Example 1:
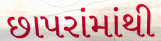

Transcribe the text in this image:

છાપરાંમાંથી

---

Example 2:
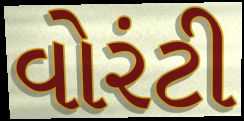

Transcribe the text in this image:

વોરંટી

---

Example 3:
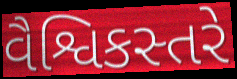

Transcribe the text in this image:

વૈશ્વિકસ્તરે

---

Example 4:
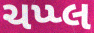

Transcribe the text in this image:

ચપ્પ્લ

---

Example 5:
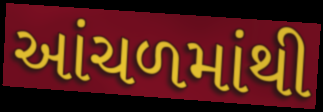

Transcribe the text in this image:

આંચળમાંથી